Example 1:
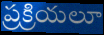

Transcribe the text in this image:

ప్రక్రియలూ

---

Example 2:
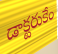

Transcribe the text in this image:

డాక్టరుకేం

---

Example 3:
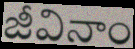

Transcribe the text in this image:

జీవినాం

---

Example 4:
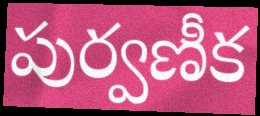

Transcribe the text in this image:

పుర్వణీక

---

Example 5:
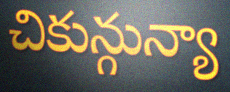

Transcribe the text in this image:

చికున్గున్యా